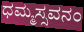
ಧಮ್ಮಸ್ಸವನಂ